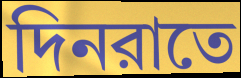
দিনরাতে